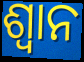
ଶ୍ଵାନ